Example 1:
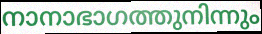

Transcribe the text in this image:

നാനാഭാഗത്തുനിന്നും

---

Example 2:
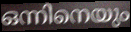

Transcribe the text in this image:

ഒന്നിനെയും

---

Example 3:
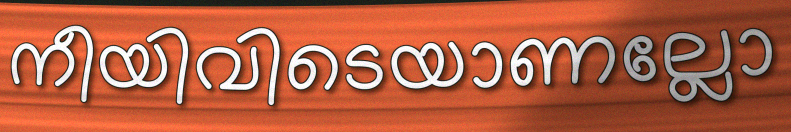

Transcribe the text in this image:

നീയിവിടെയാണല്ലോ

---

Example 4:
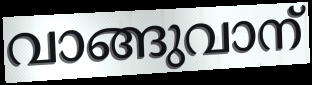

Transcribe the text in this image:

വാങ്ങുവാന്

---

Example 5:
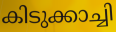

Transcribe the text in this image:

കിടുക്കാച്ചി